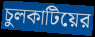
চুলকাটিয়ের